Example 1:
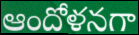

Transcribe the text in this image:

ఆందోళనగా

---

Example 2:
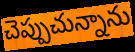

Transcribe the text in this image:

చెప్పుచున్నాను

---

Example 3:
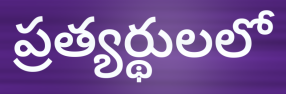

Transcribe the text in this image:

ప్రత్యర్థులలో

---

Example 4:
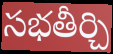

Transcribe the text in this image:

సభతీర్చి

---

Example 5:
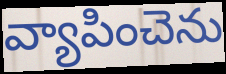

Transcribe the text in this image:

వ్యాపించెను